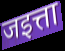
जइत्ता